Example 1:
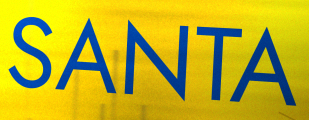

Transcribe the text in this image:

SANTA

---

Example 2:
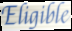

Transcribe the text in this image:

Eligible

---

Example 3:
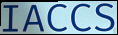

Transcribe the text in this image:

IACCS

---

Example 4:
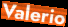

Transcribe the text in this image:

Valerio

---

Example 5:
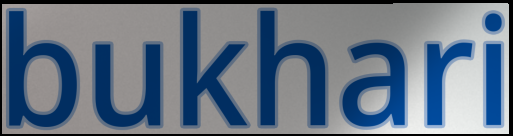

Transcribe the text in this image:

bukhari